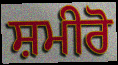
ਸ਼ਮੀਰੋ